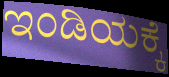
ಇಂಡಿಯಕ್ಕೆ